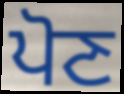
ਪੋਣ